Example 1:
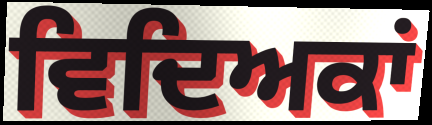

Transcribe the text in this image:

ਵਿਦਿਅਕਾਂ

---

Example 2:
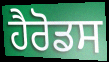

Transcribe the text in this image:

ਹੈਰੋਡਸ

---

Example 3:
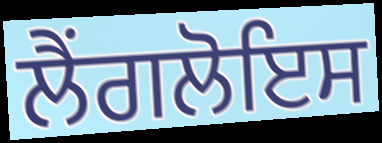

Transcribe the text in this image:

ਲੈਂਗਲੋਇਸ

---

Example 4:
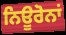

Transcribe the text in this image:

ਨਿਊਰੋਨਾਂ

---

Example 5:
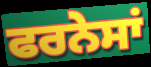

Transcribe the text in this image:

ਫਰਨੇਸਾਂ